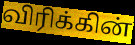
விரிக்கின்